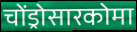
चोंड्रोसारकोमा